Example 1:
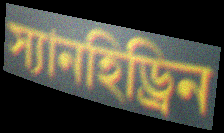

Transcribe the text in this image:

স্যানহিড্রিন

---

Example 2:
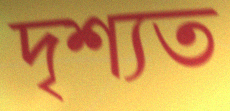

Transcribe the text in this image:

দৃশ্যত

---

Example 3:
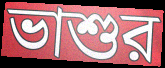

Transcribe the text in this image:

ভাশুর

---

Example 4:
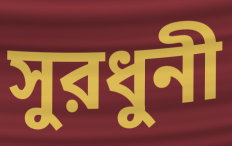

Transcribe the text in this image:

সুরধুনী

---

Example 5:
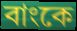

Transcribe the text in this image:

বাংকে